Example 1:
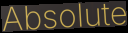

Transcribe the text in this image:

Absolute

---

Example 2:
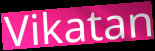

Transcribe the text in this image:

Vikatan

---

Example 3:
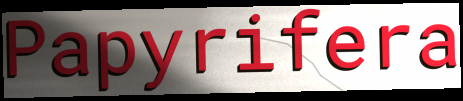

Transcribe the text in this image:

Papyrifera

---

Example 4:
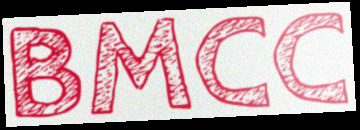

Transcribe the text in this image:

BMCC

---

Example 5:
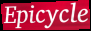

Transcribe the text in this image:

Epicycle